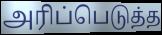
அரிப்பெடுத்த